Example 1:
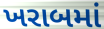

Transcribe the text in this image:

ખરાબમાં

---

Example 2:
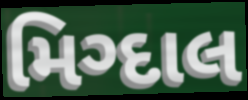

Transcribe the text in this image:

મિગ્દાલ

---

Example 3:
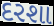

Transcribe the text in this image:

દરશા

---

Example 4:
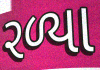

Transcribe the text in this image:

રળ્યા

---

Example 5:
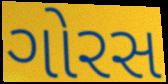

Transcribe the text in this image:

ગોરસ